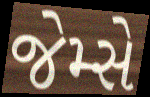
જેમ્સે